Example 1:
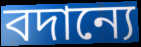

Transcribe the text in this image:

বদান্যে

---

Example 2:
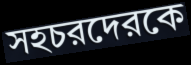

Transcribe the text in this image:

সহচরদেরকে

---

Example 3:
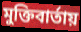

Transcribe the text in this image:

মুক্তিবার্তায়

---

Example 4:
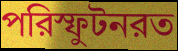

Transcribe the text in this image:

পরিস্ফুটনরত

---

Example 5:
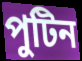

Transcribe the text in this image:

পুটিন